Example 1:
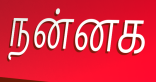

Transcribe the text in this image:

நன்னக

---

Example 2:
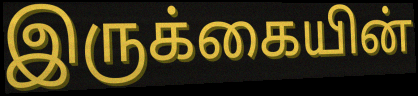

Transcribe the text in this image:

இருக்கையின்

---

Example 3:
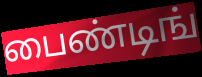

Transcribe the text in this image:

பைண்டிங்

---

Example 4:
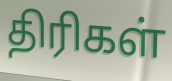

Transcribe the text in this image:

திரிகள்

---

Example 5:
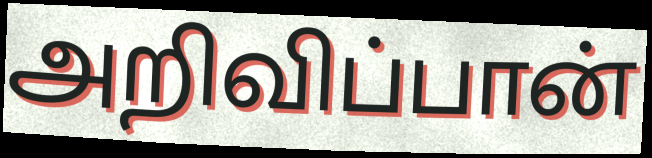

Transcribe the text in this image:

அறிவிப்பான்